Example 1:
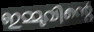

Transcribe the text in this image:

ഇമ്മുവിന്റെ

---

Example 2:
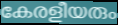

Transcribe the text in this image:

കേരളീയരും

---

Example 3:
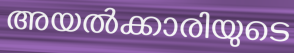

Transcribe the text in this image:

അയൽക്കാരിയുടെ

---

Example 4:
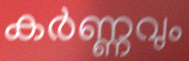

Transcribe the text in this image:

കർണ്ണവും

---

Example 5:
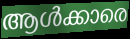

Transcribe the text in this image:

ആൾക്കാരെ